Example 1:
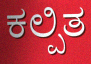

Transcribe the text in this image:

ಕಲ್ಪಿತ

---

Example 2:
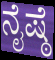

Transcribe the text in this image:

ನೈಷ್ಠೆ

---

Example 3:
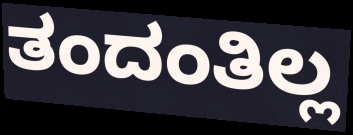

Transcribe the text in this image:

ತಂದಂತಿಲ್ಲ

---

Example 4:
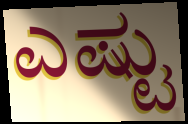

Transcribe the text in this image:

ಎಷ್ಟು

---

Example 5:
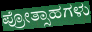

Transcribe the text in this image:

ಪ್ರೋತ್ಸಾಹಗಳು